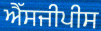
ਐੱਸਜੀਪੀਸ